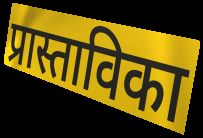
प्रास्ताविका